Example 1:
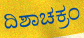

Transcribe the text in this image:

ದಿಶಾಚಕ್ರಂ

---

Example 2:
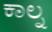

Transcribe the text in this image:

ಕಾಲ್ನ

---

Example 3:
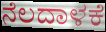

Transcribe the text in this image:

ನೆಲದಾಳಕೆ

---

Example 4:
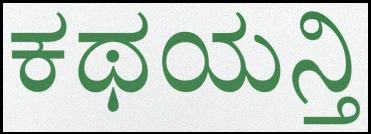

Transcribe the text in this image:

ಕಥಯನ್ತಿ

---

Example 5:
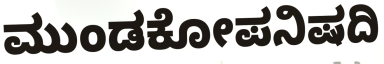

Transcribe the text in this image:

ಮುಂಡಕೋಪನಿಷದಿ